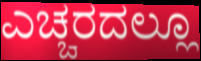
ಎಚ್ಚರದಲ್ಲೂ